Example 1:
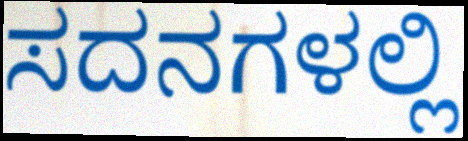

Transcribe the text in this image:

ಸದನಗಳಲ್ಲಿ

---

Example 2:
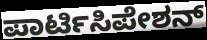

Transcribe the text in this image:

ಪಾರ್ಟಿಸಿಪೇಶನ್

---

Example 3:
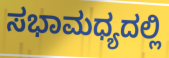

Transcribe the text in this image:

ಸಭಾಮಧ್ಯದಲ್ಲಿ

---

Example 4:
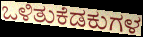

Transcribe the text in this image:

ಒಳಿತುಕೆಡಕುಗಳ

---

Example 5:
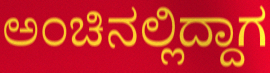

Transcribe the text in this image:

ಅಂಚಿನಲ್ಲಿದ್ದಾಗ